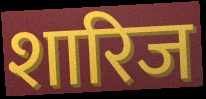
शारिज